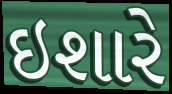
ઇશારે